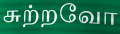
சுற்றவோ